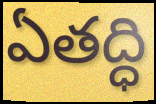
ఏతద్ధి